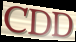
CDD